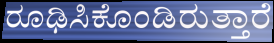
ರೂಢಿಸಿಕೊಂಡಿರುತ್ತಾರೆ